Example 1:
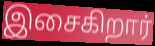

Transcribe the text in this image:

இசைகிறார்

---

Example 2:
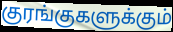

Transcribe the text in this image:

குரங்குகளுக்கும்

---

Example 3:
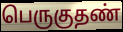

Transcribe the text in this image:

பெருகுதண்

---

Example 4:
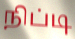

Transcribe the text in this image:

நிப்டி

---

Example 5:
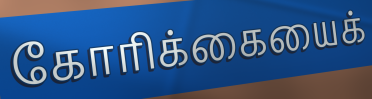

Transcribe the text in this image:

கோரிக்கையைக்